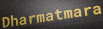
Dharmatmara